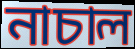
নাচাল